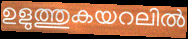
ഉളുത്തുകയറലിൽ